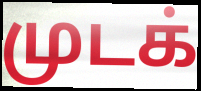
முடக்